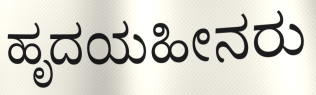
ಹೃದಯಹೀನರು